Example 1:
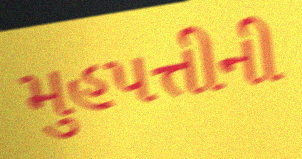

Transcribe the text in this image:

મુહપત્તીની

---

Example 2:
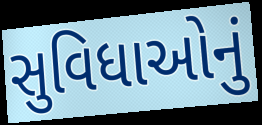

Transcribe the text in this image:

સુવિધાઓનું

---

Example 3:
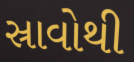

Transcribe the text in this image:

સ્રાવોથી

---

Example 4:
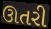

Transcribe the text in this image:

ઊતરી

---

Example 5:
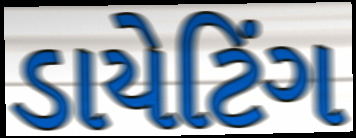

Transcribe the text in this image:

ડાયેટિંગ